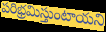
పరిభ్రమిస్తుంటాయని